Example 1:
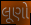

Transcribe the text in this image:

લૂણો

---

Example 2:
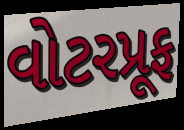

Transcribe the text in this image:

વોટરપ્રૂફ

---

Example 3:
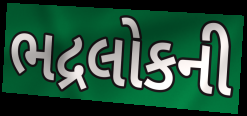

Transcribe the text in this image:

ભદ્રલોકની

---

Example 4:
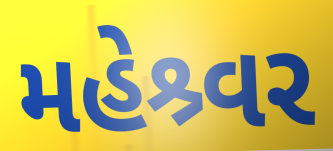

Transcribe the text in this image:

મહેશ્ર્વર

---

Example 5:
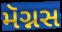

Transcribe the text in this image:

મૅગ્નસ